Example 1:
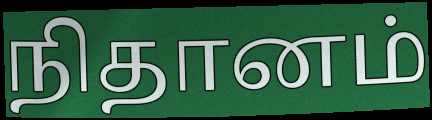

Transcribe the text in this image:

நிதானம்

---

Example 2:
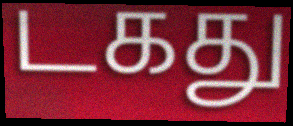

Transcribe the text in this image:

டகது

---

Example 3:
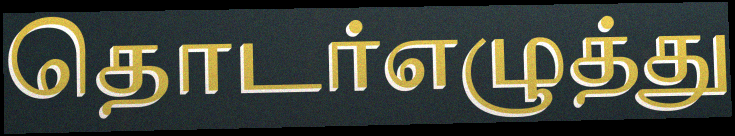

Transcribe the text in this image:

தொடர்எழுத்து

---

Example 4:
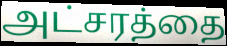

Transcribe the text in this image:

அட்சரத்தை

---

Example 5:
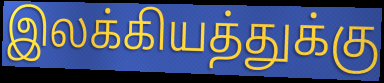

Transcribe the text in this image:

இலக்கியத்துக்கு